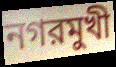
নগরমুখী